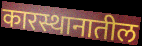
कारस्थानातील